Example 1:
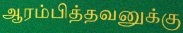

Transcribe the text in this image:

ஆரம்பித்தவனுக்கு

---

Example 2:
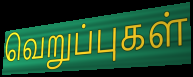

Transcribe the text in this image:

வெறுப்புகள்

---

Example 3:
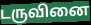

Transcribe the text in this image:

டருவினை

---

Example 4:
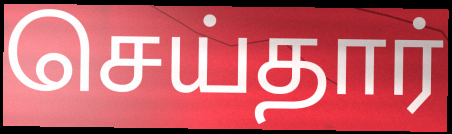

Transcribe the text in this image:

செய்தார்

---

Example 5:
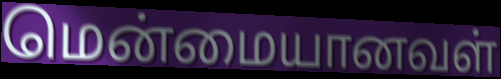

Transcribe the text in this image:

மென்மையானவள்